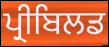
ਪ੍ਰੀਬਿਲਡ